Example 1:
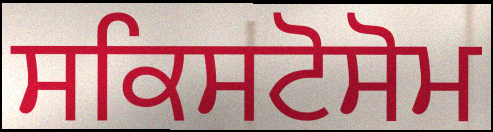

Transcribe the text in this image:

ਸਕਿਸਟੋਸੋਮ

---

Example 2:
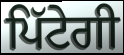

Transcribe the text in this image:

ਪਿੱਟੇਗੀ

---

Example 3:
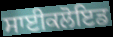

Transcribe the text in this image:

ਸਾਈਕਲੋਇਡ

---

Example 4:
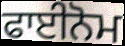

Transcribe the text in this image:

ਫਾਈਨੋਮ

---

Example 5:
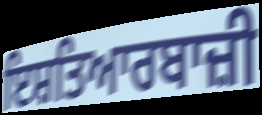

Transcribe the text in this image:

ਇਸ਼ਤਿਆਰਬਾਜ਼ੀ